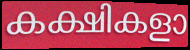
കക്ഷികളാ